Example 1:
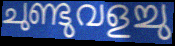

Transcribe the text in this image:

ചുണ്ടുവളച്ചു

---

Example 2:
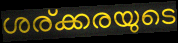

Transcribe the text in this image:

ശര്ക്കരയുടെ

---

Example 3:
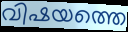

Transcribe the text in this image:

വിഷയത്തെ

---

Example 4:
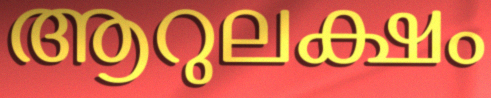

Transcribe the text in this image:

ആറുലക്ഷം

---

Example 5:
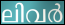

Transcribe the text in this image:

ലിവർ